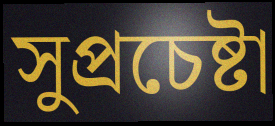
সুপ্রচেষ্টা